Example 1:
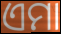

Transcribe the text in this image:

ଏମା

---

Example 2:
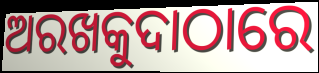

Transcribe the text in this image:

ଅରଖକୁଦାଠାରେ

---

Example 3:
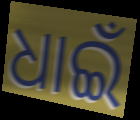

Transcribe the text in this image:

ଧାଇଁ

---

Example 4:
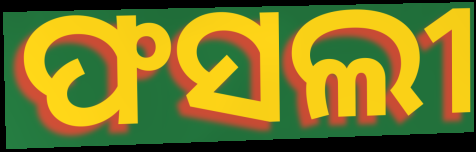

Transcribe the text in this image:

ଫସଲୀ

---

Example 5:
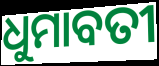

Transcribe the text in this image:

ଧୁମାବତୀ